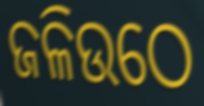
ଜଳିଉଠେ